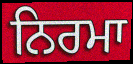
ਨਿਰਮਾ